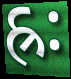
હ્રઃ